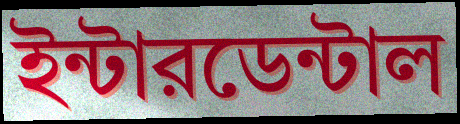
ইন্টারডেন্টাল